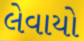
લેવાયો